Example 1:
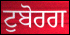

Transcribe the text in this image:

ਟੁਬੋਰਗ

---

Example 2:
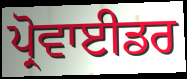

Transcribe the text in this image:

ਪ੍ਰੋਵਾਈਡਰ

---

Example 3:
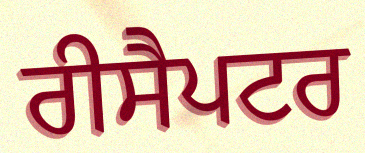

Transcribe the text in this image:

ਰੀਸੈਪਟਰ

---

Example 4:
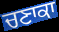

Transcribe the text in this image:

ਚਣਾਕਾ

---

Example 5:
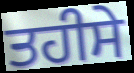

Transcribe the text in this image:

ਤਹੀਸੇ